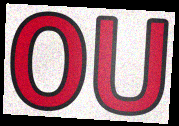
OU